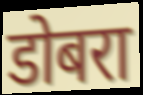
डोबरा